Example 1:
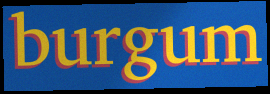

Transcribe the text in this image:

burgum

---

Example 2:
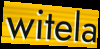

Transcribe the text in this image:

witela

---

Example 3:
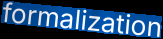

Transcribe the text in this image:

formalization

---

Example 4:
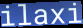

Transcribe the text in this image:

ilaxi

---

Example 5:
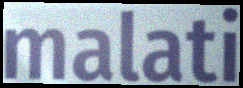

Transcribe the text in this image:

malati